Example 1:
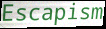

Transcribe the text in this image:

Escapism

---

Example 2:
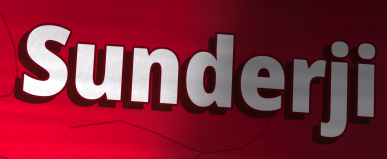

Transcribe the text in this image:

Sunderji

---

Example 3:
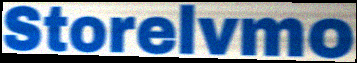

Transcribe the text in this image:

Storelvmo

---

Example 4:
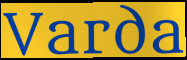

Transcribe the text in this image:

Varda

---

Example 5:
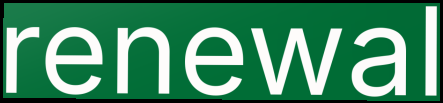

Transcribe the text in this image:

renewal